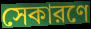
সেকারণে